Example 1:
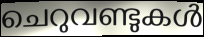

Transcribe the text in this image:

ചെറുവണ്ടുകൾ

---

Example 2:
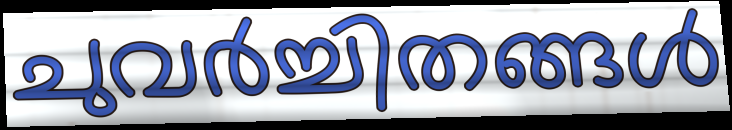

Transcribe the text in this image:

ചുവർച്ചിതങ്ങൾ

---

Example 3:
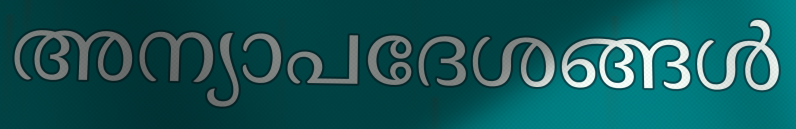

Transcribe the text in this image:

അന്യാപദേശങ്ങൾ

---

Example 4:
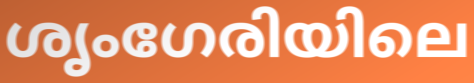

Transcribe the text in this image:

ശൃംഗേരിയിലെ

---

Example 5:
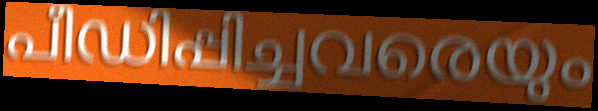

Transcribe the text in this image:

പീഡിപ്പിച്ചവരെയും